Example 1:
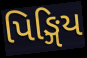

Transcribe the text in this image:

પિઙ્ગિય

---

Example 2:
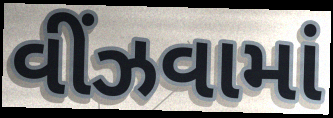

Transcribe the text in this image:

વીંઝવામાં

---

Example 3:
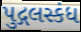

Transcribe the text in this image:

પુદ્ગલસ્કંધ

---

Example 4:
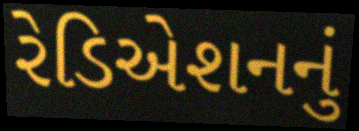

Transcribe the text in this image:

રેડિએશનનું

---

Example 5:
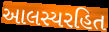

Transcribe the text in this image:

આલસ્યરહિત